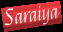
Saraiya